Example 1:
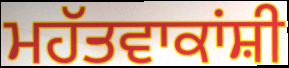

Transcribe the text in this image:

ਮਹੱਤਵਾਕਾਂਸ਼ੀ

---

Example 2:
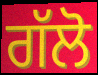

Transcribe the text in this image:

ਗੱਲੋ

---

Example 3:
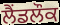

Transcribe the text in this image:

ਲੈਂਡਲੌਕ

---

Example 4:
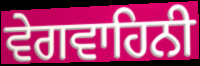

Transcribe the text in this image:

ਵੇਗਵਾਹਿਨੀ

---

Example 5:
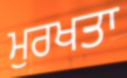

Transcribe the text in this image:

ਮੁਰਖਤਾ